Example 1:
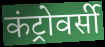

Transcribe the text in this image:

कंट्रोवर्सी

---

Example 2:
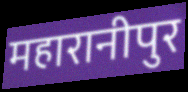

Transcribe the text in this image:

महारानीपुर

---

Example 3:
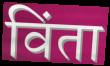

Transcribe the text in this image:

विंता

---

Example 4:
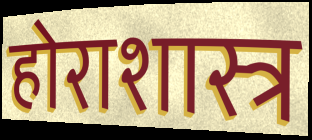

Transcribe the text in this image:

होराशास्त्र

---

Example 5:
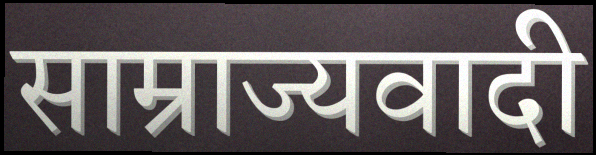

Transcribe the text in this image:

साम्राज्यवादी